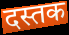
दस्तक